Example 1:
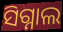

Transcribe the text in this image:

ସିଗ୍ନାଲ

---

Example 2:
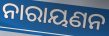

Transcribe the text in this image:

ନାରାୟଣନ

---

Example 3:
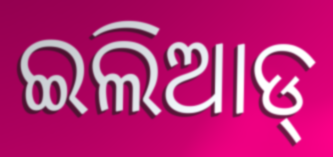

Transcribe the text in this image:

ଇଲିଆଡ୍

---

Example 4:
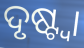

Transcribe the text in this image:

ଦୃଷ୍ଟ୍ବା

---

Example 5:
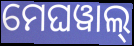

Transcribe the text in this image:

ମେଘୱାଲ୍